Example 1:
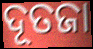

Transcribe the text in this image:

ଦୂତଜା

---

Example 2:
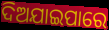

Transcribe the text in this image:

ଦିଅଯାଇପାରେ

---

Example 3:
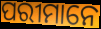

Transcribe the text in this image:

ପରୀମାନେ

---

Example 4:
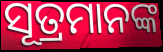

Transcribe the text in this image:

ସୂତ୍ରମାନଙ୍କ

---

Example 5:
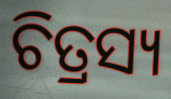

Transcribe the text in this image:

ଚିତ୍ରସ୍ୟ